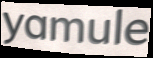
yamule